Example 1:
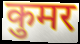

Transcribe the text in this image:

कुमर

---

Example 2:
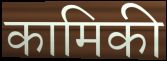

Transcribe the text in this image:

कामिकी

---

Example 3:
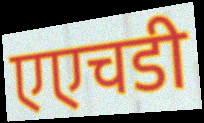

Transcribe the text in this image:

एएचडी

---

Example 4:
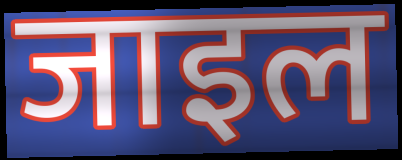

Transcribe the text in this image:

जाइल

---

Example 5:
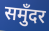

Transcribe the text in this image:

समुँदर